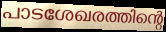
പാടശേഖരത്തിന്റെ